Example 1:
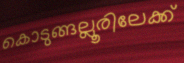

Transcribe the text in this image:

കൊടുങ്ങല്ലൂരിലേക്ക്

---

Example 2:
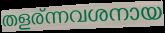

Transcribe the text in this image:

തളര്ന്നവശനായ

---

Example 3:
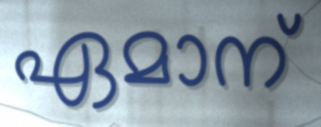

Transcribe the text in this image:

ഏമാന്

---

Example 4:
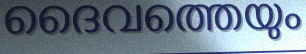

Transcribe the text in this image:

ദൈവത്തെയും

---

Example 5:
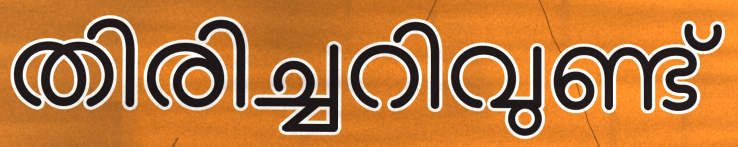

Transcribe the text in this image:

തിരിച്ചറിവുണ്ട്